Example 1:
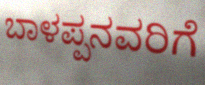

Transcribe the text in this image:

ಬಾಳಪ್ಪನವರಿಗೆ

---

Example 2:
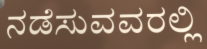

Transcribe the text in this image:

ನಡೆಸುವವರಲ್ಲಿ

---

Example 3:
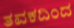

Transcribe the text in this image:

ತವಕದಿಂದ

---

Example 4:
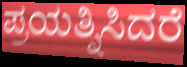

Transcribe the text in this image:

ಪ್ರಯತ್ನಿಸಿದರೆ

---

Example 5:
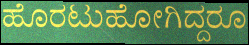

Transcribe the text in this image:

ಹೊರಟುಹೋಗಿದ್ದರೂ